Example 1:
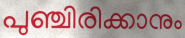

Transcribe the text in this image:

പുഞ്ചിരിക്കാനും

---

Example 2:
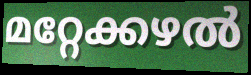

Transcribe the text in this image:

മറ്റേക്കഴൽ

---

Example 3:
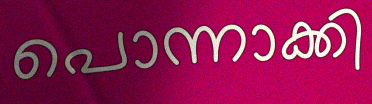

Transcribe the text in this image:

പൊന്നാക്കി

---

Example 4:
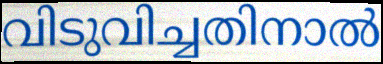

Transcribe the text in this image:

വിടുവിച്ചതിനാൽ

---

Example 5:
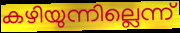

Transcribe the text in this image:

കഴിയുന്നില്ലെന്ന്